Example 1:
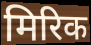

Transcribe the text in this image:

मिरिक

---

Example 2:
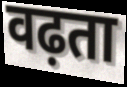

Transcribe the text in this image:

वढ़ता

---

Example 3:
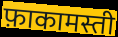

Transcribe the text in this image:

फ़ाकामस्ती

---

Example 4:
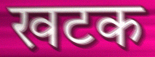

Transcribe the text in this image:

खटक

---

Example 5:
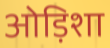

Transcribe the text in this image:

ओड़िशा